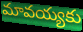
మావయ్యకు